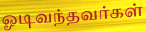
ஓடிவந்தவர்கள்